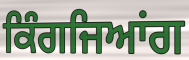
ਕਿੰਗਜਿਆਂਗ